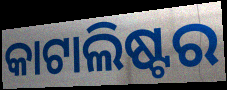
କାଟାଲିଷ୍ଟର